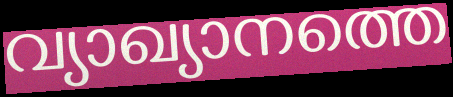
വ്യാഖ്യാനത്തെ